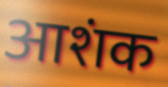
आशंक